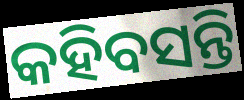
କହିବସନ୍ତି